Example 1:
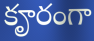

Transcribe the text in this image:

కౄరంగా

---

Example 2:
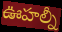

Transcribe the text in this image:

ఊహల్నీ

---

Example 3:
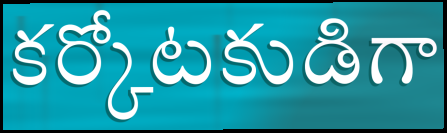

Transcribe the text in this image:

కర్కోటకుడిగా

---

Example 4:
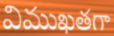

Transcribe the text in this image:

విముఖతగా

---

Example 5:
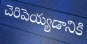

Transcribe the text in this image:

చెరిపెయ్యడానికి